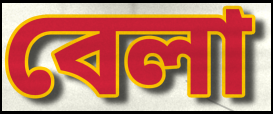
বেলা